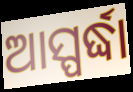
ଆସ୍ପର୍ଦ୍ଧା